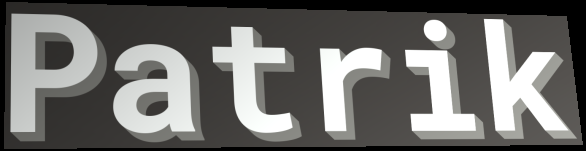
Patrik